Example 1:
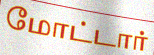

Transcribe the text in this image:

மோட்டார்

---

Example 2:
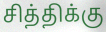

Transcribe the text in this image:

சித்திக்கு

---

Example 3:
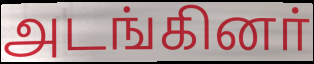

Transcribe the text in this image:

அடங்கினர்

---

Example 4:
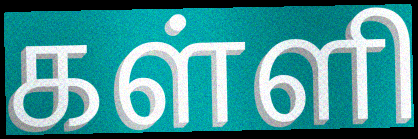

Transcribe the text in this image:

கள்ளி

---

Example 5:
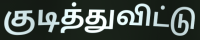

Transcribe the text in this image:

குடித்துவிட்டு